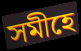
সমীহে